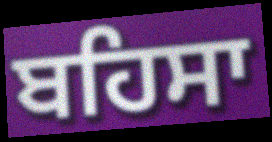
ਬਹਿਸਾ